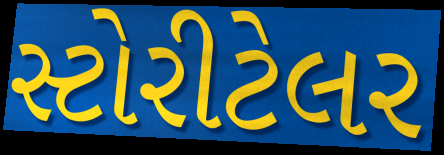
સ્ટોરીટેલર